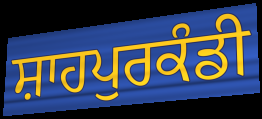
ਸ਼ਾਹਪੁਰਕੰਡੀ